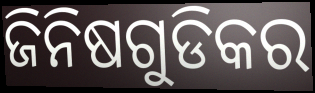
ଜିନିଷଗୁଡିକର